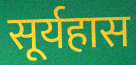
सूर्यहास